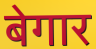
बेगार